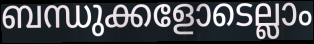
ബന്ധുക്കളോടെല്ലാം